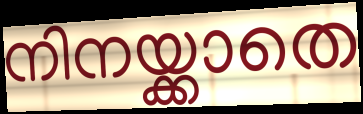
നിനയ്ക്കാതെ